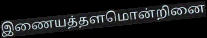
இணையத்தளமொன்றினை